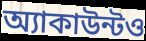
অ্যাকাউন্টও